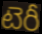
టెరీ